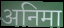
अनिमा